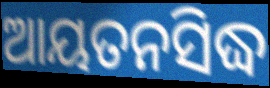
ଆୟତନସିଦ୍ଧ